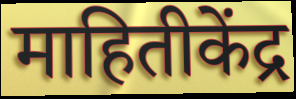
माहितीकेंद्र